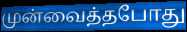
முன்வைத்தபோது